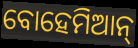
ବୋହେମିଆନ୍